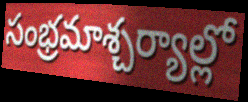
సంభ్రమాశ్చర్యాల్లో